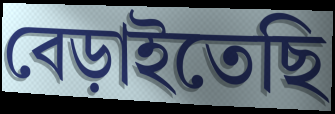
বেড়াইতেছি